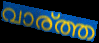
വാര്ത്ത